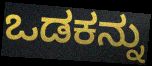
ಒಡಕನ್ನು